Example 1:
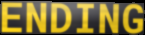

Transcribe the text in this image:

ENDING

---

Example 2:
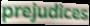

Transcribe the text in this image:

prejudices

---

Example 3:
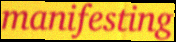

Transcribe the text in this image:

manifesting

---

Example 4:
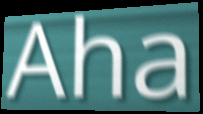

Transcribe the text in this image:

Aha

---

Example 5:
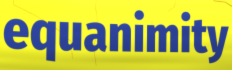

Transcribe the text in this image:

equanimity